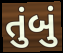
તુંબું